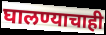
घालण्याचाही